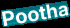
Pootha